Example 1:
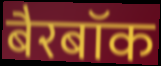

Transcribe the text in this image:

बैरबॉक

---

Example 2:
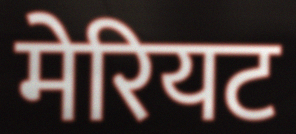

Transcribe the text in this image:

मेरियट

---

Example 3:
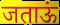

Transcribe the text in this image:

जताऊं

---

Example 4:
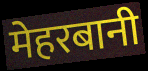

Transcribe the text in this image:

मेहरबानी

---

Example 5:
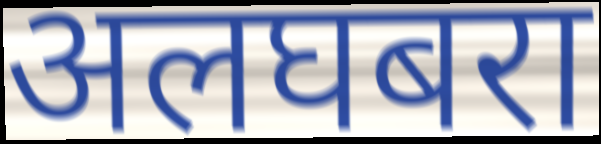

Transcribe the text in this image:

अलघबरा